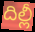
దిల్లీ